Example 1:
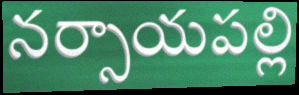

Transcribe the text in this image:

నర్సాయపల్లి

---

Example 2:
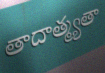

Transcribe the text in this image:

తాదాత్మ్యతా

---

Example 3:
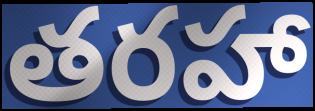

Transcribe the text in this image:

తరహా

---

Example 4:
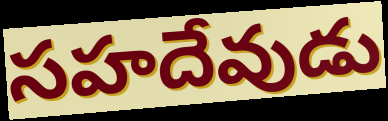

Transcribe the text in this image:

సహదేవుడు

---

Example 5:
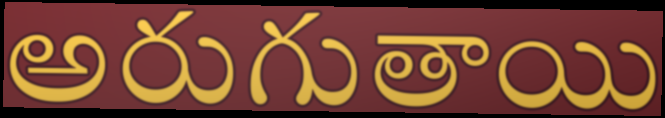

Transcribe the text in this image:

అరుగుతాయి